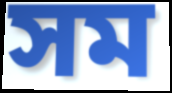
সম